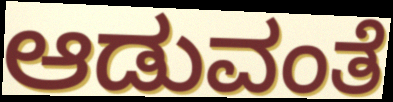
ಆಡುವಂತೆ